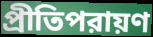
প্রীতিপরায়ণ